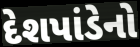
દેશપાંડેનો